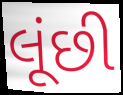
લૂંછી